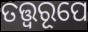
ତତ୍ତ୍ୱରୂପେ